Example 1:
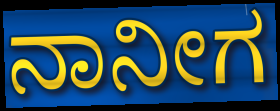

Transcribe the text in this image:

ನಾನೀಗ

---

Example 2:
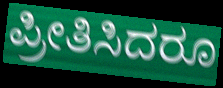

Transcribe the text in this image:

ಪ್ರೀತಿಸಿದರೂ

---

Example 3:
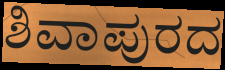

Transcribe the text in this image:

ಶಿವಾಪುರದ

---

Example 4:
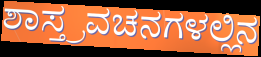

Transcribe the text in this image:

ಶಾಸ್ತ್ರವಚನಗಳಲ್ಲಿನ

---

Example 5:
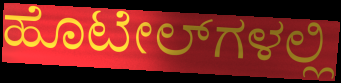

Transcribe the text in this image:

ಹೊಟೇಲ್‌ಗಳಲ್ಲಿ